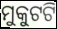
ମୁକୁଟଟି